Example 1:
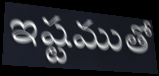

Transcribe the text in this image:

ఇష్టముతో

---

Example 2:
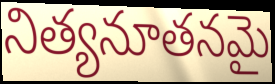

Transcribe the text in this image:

నిత్యనూతనమై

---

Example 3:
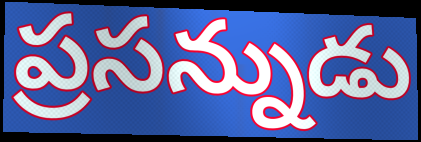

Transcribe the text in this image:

ప్రసన్నుడు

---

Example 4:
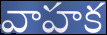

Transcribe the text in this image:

వాహక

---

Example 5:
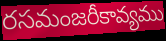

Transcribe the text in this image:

రసమంజరీకావ్యము